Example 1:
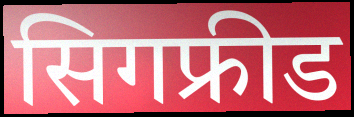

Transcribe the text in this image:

सिगफ्रीड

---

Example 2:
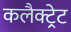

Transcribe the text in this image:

कलैक्ट्रेट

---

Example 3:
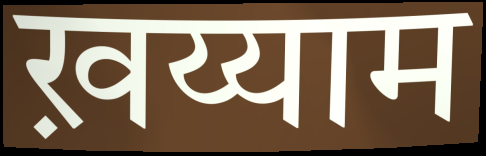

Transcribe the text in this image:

ख़य्याम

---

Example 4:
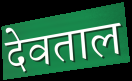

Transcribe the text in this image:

देवताल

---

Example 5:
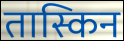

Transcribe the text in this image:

तास्किन